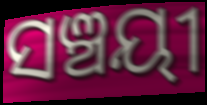
ସଞ୍ଚୟୀ